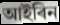
আইৰিন